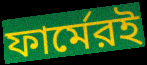
ফার্মেরই